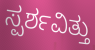
ಸ್ಪರ್ಶವಿತ್ತು